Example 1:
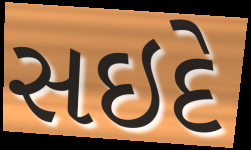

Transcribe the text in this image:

સઇદે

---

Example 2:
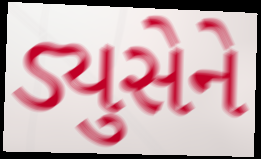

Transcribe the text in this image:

ડ્યુસેને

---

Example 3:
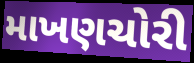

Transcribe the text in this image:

માખણચોરી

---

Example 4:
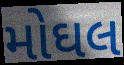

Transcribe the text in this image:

મોઘલ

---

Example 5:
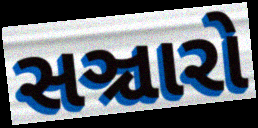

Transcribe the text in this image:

સઞ્ચારો